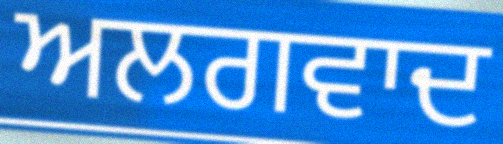
ਅਲਗਵਾਦ